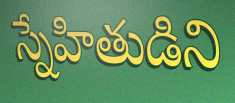
స్నేహితుడిని